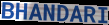
BHANDARI